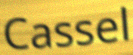
Cassel